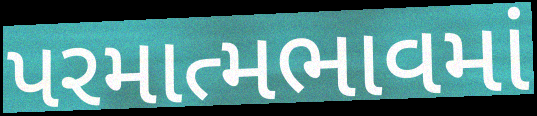
પરમાત્મભાવમાં